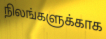
நிலங்களுக்காக